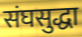
संघसुद्धा